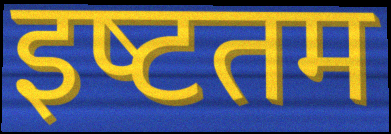
इष्‍टतम